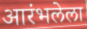
आरंभलेला